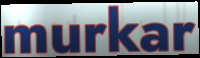
murkar